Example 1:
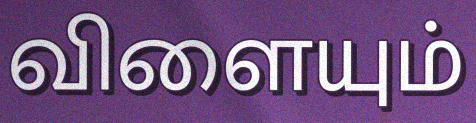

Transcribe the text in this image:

விளையும்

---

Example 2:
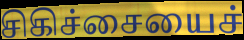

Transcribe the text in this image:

சிகிச்சையைச்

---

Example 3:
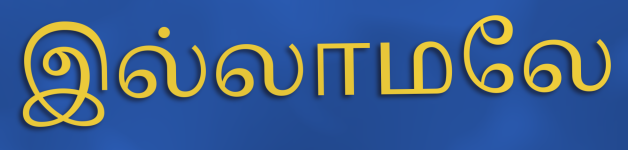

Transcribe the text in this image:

இல்லாமலே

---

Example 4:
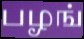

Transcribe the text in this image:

பழங்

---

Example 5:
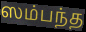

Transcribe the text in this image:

ஸம்பந்த